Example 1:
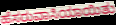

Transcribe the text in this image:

ಹೆಸರುವಾಸಿಯಾಯಿತು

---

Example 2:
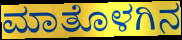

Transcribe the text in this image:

ಮಾತೊಳಗಿನ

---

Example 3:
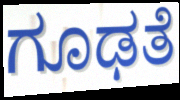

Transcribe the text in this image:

ಗೂಢತೆ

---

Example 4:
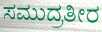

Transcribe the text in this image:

ಸಮುದ್ರತೀರ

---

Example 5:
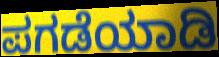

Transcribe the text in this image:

ಪಗಡೆಯಾಡಿ